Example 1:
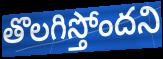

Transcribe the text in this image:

తొలగిస్తోందని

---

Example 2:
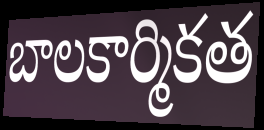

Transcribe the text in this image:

బాలకార్మికత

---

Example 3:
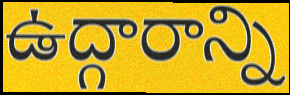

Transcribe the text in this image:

ఉద్గారాన్ని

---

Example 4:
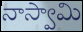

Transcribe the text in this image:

నాస్వామి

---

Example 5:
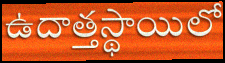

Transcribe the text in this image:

ఉదాత్తస్థాయిలో